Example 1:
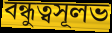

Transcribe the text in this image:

বন্ধুত্বসূলভ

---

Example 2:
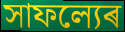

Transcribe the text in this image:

সাফল্যেৰ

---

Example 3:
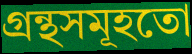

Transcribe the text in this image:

গ্ৰন্থসমূহতো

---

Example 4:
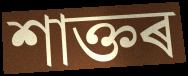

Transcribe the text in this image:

শাক্তৰ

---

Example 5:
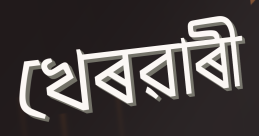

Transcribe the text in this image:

খেৰৱাৰী